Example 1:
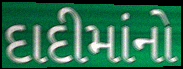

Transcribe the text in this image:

દાદીમાંનો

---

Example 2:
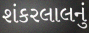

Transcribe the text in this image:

શંકરલાલનું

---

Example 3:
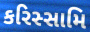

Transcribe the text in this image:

કરિસ્સામિ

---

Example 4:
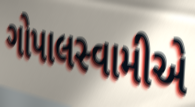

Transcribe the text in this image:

ગોપાલસ્વામીએ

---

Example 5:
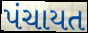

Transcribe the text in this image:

પંચાયત